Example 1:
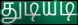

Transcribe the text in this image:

துடியடி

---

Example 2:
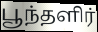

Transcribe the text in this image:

பூந்தளிர்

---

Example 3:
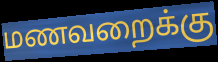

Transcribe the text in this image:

மணவறைக்கு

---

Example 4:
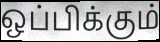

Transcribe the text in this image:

ஒப்பிக்கும்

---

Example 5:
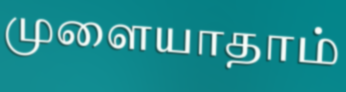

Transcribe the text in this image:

முளையாதாம்